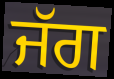
ਜੱਗ